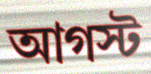
আগস্ট